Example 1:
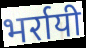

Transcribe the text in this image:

भर्रायी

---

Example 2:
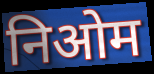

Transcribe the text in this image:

निओम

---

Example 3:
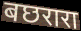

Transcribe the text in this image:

बछरारा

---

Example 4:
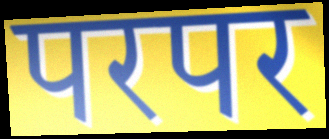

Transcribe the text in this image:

परपर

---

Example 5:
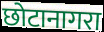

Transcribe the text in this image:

छोटानागरा